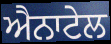
ਐਨਾਟੇਲ